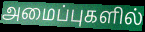
அமைப்புகளில்